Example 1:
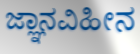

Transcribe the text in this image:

ಜ್ಞಾನವಿಹೀನ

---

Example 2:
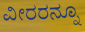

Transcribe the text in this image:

ವೀರರನ್ನೂ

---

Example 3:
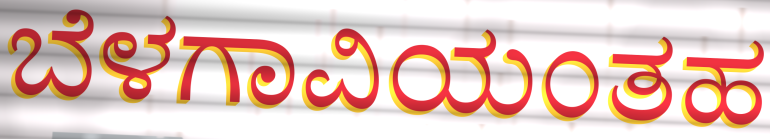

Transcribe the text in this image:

ಬೆಳಗಾವಿಯಂತಹ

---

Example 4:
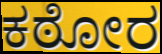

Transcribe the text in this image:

ಕಠೋರ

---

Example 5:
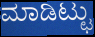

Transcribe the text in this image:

ಮಾಡಿಟ್ಟು